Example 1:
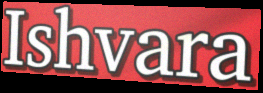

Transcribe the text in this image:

Ishvara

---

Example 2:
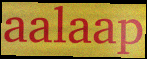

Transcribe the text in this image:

aalaap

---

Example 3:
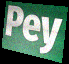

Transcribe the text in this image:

Pey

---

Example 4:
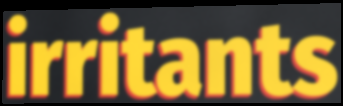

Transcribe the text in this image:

irritants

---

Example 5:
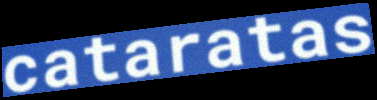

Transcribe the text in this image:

cataratas